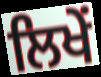
ਲਿਖੇਂ